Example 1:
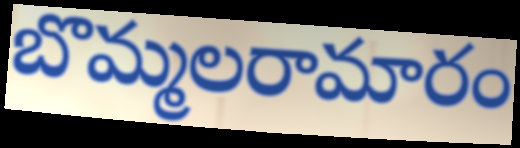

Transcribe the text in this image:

బొమ్మలరామారం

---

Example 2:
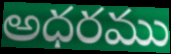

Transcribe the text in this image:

అధరము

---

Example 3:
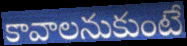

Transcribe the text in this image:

కావాలనుకుంటే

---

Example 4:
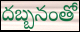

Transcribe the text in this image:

దబ్బనంతో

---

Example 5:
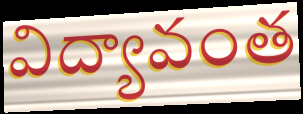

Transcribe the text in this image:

విద్యావంత